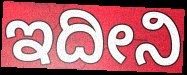
ಇದೀನಿ